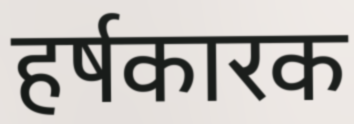
हर्षकारक